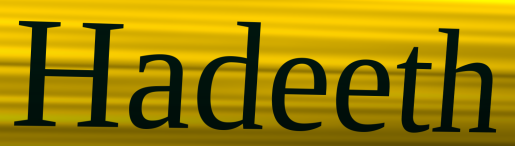
Hadeeth